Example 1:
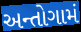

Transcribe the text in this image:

અન્તોગામં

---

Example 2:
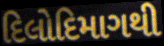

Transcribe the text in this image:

દિલોદિમાગથી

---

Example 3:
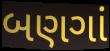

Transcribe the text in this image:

બણગાં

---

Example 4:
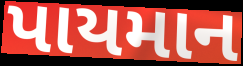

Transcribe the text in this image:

પાયમાન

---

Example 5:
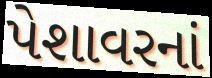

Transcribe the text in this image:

પેશાવરનાં